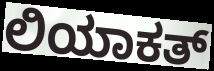
ಲಿಯಾಕತ್